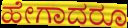
ಹೇಗಾದರೂ